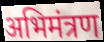
अभिमंत्रण